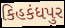
કિહકંધપુર